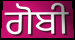
ਗੋਬੀ